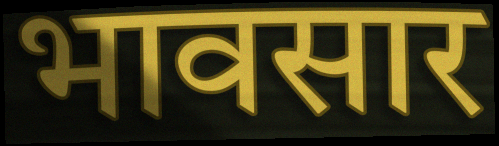
भावसार